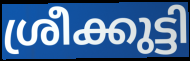
ശ്രീക്കുട്ടി